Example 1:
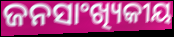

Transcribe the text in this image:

ଜନସାଂଖ୍ୟିକୀୟ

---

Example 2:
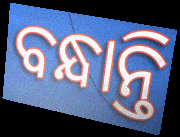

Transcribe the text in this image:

ବନ୍ଧାନ୍ତି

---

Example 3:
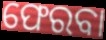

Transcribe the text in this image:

ଫେରବା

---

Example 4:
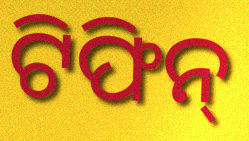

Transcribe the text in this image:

ଟିଫିନ୍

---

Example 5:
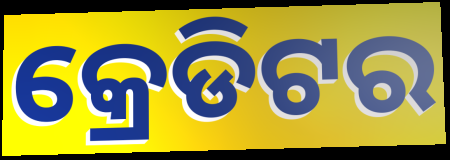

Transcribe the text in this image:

କ୍ରେଡିଟର